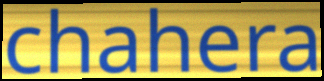
chahera